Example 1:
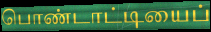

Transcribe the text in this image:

பொண்டாட்டியைப்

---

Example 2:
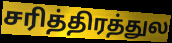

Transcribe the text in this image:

சரித்திரத்துல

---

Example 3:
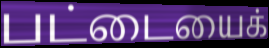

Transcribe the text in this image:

பட்டையைக்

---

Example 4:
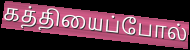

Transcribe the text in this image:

கத்தியைப்போல்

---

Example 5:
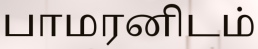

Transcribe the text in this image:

பாமரனிடம்